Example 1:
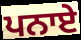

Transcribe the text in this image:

ਪਨਾਏ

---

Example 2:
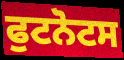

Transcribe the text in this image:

ਫੁਟਨੋਟਸ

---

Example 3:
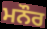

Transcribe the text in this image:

ਮਨੌਰ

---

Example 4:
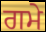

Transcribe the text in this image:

ਗਮੇ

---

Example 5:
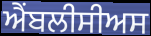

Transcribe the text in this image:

ਐਂਬਲੀਸੀਅਸ